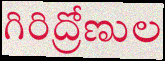
గిరిద్రోణుల